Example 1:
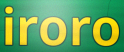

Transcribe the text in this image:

iroro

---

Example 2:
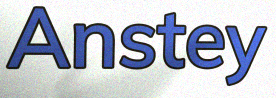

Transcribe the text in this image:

Anstey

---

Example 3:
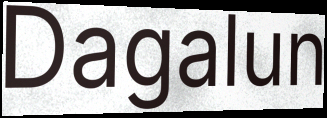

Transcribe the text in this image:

Dagalun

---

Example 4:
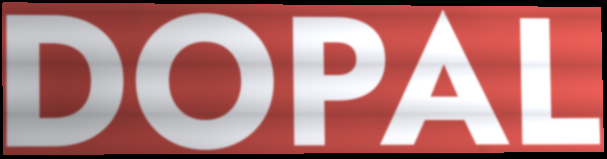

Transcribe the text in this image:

DOPAL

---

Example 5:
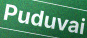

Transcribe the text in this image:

Puduvai